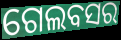
ଗେଲବସର